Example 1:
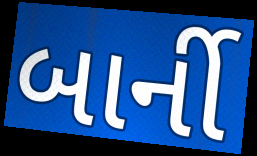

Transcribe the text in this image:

બાર્ની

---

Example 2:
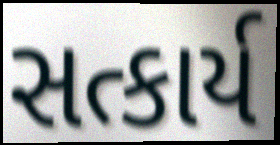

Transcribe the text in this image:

સત્કાર્ય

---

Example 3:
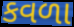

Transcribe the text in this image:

કવળા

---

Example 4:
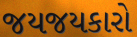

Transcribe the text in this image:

જયજયકારો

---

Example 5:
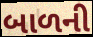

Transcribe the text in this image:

બાળની